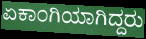
ಏಕಾಂಗಿಯಾಗಿದ್ದರು